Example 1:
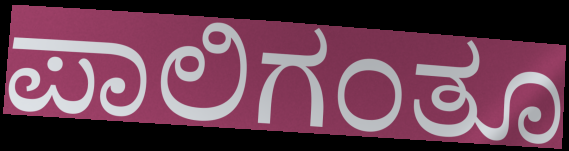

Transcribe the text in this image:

ಪಾಲಿಗಂತೂ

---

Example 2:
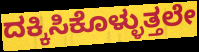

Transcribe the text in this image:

ದಕ್ಕಿಸಿಕೊಳ್ಳುತ್ತಲೇ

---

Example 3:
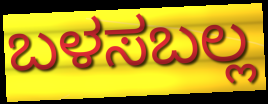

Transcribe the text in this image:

ಬಳಸಬಲ್ಲ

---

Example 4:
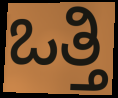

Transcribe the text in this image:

ಒತ್ತಿ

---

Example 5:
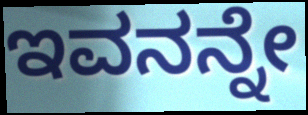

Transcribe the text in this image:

ಇವನನ್ನೇ